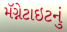
મૅગ્નેટાઇટનું